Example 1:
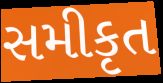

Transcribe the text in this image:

સમીકૃત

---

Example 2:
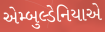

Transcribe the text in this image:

એમ્બુલ્ડેનિયાએ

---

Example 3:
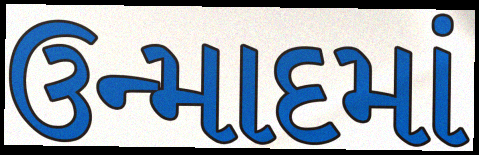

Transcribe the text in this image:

ઉન્માદમાં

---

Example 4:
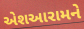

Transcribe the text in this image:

એશઆરામને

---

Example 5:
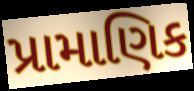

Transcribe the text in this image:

પ્રામાણિક